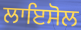
ਲਾਇਸੋਲ